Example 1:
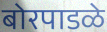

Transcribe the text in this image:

बोरपाडळे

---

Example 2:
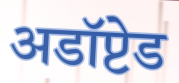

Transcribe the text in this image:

अडॉप्टेड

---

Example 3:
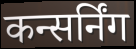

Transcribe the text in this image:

कन्सर्निंग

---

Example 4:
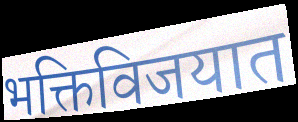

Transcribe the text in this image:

भक्तिविजयात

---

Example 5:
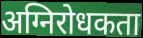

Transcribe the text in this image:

अग्निरोधकता